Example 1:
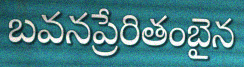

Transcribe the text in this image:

బవనప్రేరితంబైన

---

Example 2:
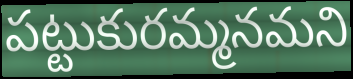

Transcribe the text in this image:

పట్టుకురమ్మనమని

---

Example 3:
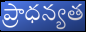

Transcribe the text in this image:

ప్రాధన్యత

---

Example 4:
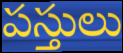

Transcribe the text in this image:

పస్తులు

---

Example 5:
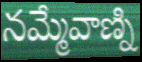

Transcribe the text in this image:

నమ్మేవాణ్ని